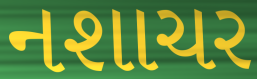
નશાચર